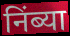
निंब्या